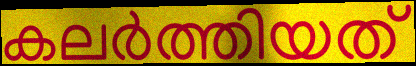
കലർത്തിയത്